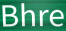
Bhre